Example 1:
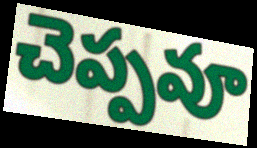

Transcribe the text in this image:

చెప్పవూ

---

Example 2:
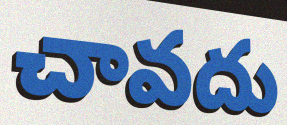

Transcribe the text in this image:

చావదు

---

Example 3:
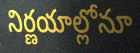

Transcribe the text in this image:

నిర్ణయాల్లోనూ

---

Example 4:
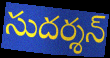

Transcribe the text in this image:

సుదర్శన్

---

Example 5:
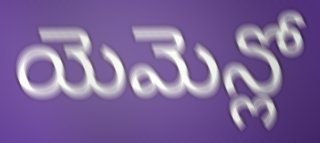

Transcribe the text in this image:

యెమెన్లో